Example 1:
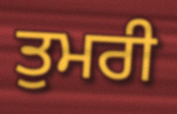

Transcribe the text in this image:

ਤੁਮਰੀ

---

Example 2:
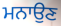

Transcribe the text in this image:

ਮਨਾਉਣ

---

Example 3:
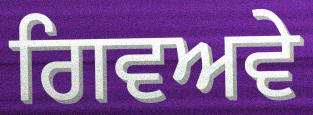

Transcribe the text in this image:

ਗਿਵਅਵੇ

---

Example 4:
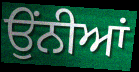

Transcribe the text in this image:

ਉੰਨੀਆਂ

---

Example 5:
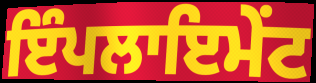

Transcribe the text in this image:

ਇੰਪਲਾਇਮੇਂਟ